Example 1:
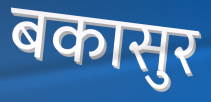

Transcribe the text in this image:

बकासुर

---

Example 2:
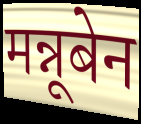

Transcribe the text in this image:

मन्नूबेन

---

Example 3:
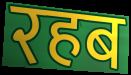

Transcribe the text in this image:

रहब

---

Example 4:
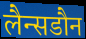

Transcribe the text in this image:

लैन्सडौन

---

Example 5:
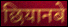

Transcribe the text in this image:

छियानबे